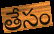
తేసం